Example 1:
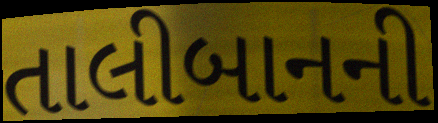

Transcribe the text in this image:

તાલીબાનની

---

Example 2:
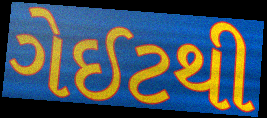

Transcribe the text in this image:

ગેઈટથી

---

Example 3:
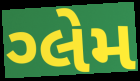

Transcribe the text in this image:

ગ્લેમ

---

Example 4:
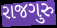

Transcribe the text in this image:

રાજગુરુ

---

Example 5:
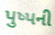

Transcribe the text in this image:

પુષ્પની